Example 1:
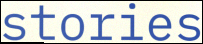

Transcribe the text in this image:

stories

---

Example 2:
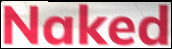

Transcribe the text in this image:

Naked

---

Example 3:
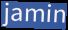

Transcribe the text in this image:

jamin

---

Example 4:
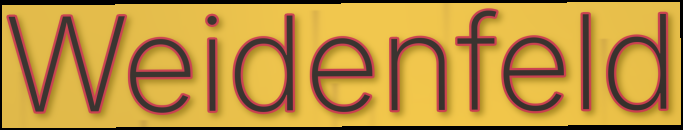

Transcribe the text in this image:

Weidenfeld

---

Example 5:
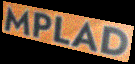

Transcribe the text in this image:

MPLAD